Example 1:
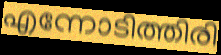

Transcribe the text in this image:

എന്നോടിത്തിരി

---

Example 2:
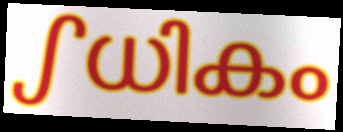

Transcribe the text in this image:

ഽധികം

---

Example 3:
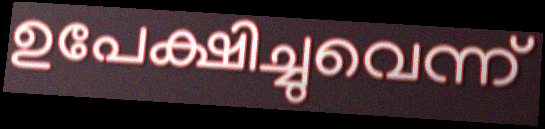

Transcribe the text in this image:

ഉപേക്ഷിച്ചുവെന്ന്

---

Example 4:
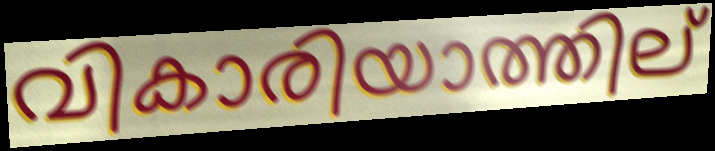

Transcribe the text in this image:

വികാരിയാത്തില്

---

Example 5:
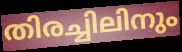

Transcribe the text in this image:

തിരച്ചിലിനും